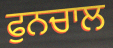
ਫੁਨਚਾਲ